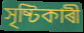
সৃষ্টিকাৰী